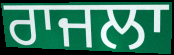
ਰਾਜਲਾ